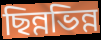
ছিন্নভিন্ন